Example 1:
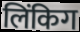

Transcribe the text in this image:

लिंकिग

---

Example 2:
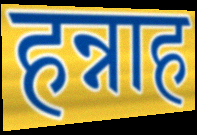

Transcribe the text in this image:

हन्नाह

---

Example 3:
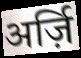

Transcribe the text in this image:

अर्ज़ि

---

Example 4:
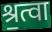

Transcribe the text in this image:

श्र॒त्वा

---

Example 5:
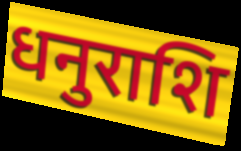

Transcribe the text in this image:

धनुराशि